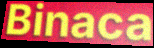
Binaca